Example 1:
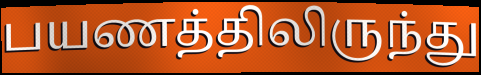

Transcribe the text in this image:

பயணத்திலிருந்து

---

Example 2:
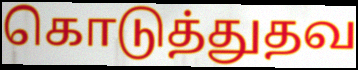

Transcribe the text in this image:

கொடுத்துதவ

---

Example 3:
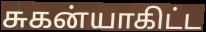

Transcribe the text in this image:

சுகன்யாகிட்ட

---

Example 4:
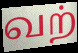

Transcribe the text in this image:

வற்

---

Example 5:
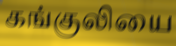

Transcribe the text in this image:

கங்குலியை